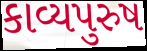
કાવ્યપુરુષ